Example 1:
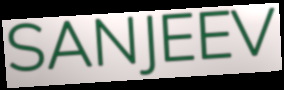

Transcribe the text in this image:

SANJEEV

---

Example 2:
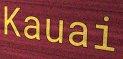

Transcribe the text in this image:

Kauai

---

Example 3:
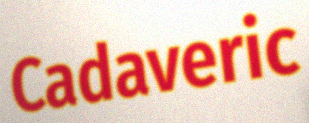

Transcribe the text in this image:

Cadaveric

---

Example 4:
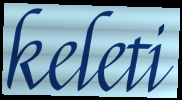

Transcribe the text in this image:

keleti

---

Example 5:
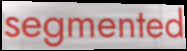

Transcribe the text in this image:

segmented